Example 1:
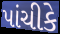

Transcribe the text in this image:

પાંચીકે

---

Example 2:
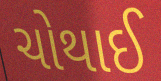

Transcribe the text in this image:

ચોથાઈ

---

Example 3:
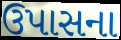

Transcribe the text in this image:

ઉપાસના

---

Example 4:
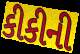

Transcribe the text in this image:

કીકીની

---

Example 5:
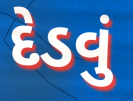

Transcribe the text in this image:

દેડવું